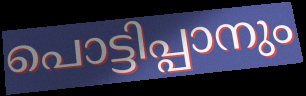
പൊട്ടിപ്പാനും